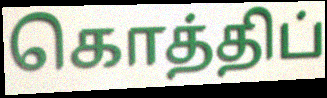
கொத்திப்